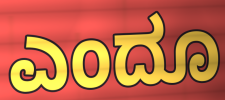
ಎಂದೂ